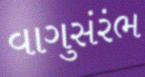
વાગુસંરંભ